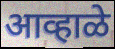
आव्हाळे